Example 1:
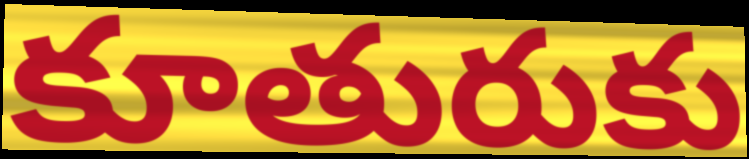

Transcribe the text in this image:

కూతురుకు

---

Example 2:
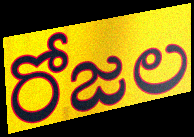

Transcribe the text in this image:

రోజల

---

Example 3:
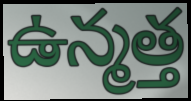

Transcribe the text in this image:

ఉన్మత్త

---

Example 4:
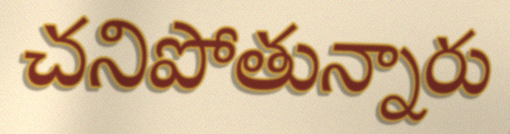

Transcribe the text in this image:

చనిపోతున్నారు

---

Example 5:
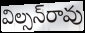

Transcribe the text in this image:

విల్సన్‌రావు